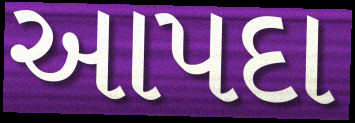
આપદા